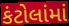
કંટોલાંમાં